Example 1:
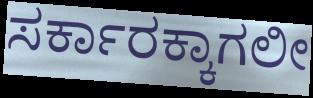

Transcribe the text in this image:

ಸರ್ಕಾರಕ್ಕಾಗಲೀ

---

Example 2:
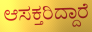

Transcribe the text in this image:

ಆಸಕ್ತರಿದ್ದಾರೆ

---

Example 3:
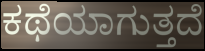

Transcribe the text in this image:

ಕಥೆಯಾಗುತ್ತದೆ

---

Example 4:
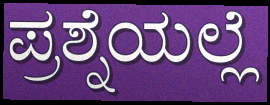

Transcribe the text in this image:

ಪ್ರಶ್ನೆಯಲ್ಲೆ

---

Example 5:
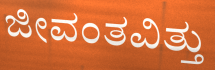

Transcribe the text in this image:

ಜೀವಂತವಿತ್ತು